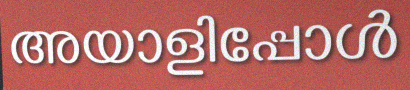
അയാളിപ്പോൾ